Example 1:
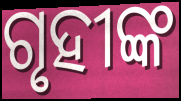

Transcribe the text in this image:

ଗୃହୀଙ୍କ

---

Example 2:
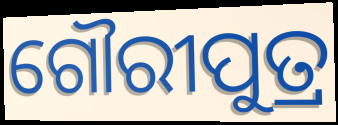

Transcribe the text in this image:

ଗୌରୀପୁତ୍ର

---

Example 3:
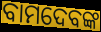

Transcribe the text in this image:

ବାମଦେବଙ୍କ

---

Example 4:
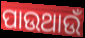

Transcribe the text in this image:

ପାଉଥାଉଁ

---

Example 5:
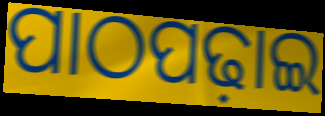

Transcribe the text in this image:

ପାଠପଢ଼ାଇ